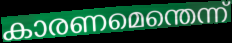
കാരണമെന്തെന്ന്